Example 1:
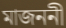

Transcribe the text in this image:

মাজননী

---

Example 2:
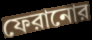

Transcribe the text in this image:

ফেরানোর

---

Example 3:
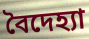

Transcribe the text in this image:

বৈদেহ্যা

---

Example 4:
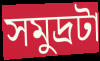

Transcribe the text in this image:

সমুদ্রটা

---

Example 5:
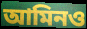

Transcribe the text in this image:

আমিনও